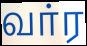
வர்ர